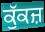
ਕੁੱਕਜ਼